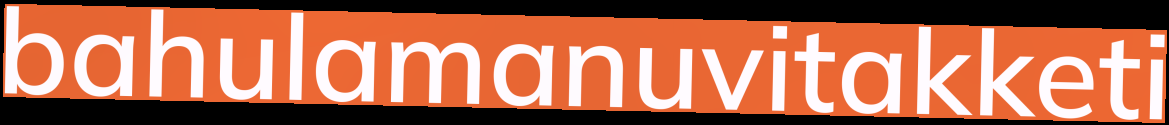
bahulamanuvitakketi